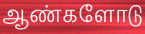
ஆண்களோடு